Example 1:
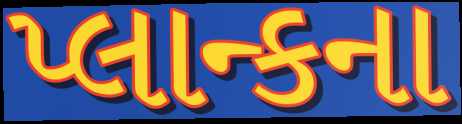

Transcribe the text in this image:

પ્લાન્કના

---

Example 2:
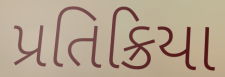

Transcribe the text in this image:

પ્રતિક્રિયા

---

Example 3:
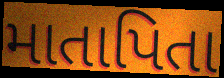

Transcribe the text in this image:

માતાપિતા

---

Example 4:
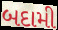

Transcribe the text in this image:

બદામી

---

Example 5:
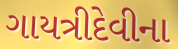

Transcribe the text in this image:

ગાયત્રીદેવીના